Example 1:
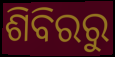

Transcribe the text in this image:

ଶିବିରରୁ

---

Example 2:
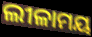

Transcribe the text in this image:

ଲୀଳାମୟ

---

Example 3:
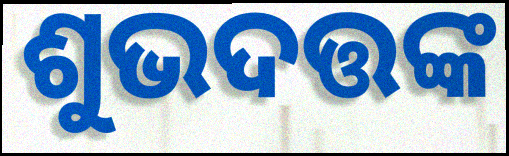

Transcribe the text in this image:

ଶୁଭଦତ୍ତଙ୍କ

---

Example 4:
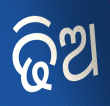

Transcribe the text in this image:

ଢିଅ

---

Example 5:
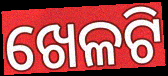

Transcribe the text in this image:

ଖେଳଟି